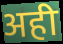
अही